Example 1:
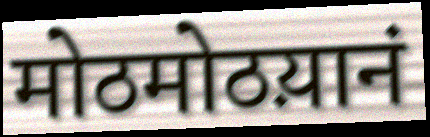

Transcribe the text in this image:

मोठमोठय़ानं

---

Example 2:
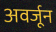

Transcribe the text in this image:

अवर्जून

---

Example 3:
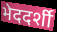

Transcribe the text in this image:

भेददर्शी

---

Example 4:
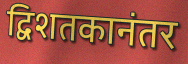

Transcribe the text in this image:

द्विशतकानंतर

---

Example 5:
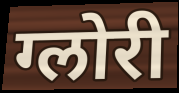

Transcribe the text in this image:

ग्लोरी